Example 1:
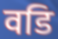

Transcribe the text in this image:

वडि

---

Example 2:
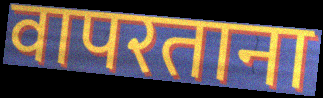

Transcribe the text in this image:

वापरताना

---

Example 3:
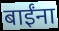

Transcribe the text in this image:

बाईंना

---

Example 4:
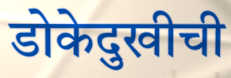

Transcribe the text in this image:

डोकेदुखीची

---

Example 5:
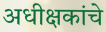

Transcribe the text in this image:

अधीक्षकांचे